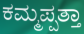
ಕಮ್ಮಪ್ಪತ್ತಾ